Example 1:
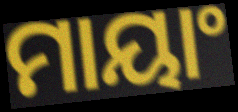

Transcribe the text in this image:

ମାୟାଂ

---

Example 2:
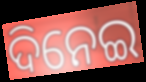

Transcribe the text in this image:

ଦିନେଇ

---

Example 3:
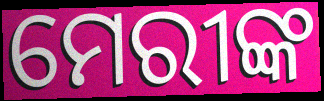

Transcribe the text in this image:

ମେରୀଙ୍କ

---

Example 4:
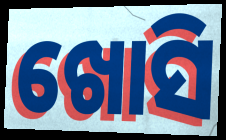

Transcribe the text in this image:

ଖୋସି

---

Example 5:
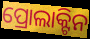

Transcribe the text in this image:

ପ୍ରୋଲାକ୍ଟିନ